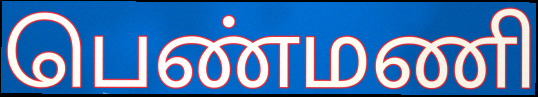
பெண்மணி